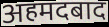
अहमदबाद